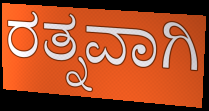
ರತ್ನವಾಗಿ